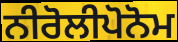
ਨੀਰੋਲੀਪੋਨੋਮ